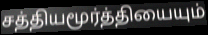
சத்தியமூர்த்தியையும்